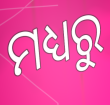
ମଧ୍ୟରୁ